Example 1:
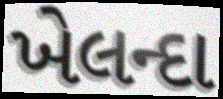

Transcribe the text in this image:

ખેલન્દા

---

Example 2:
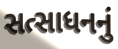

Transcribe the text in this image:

સત્સાધનનું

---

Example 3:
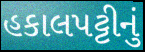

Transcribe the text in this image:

હકાલપટ્ટીનું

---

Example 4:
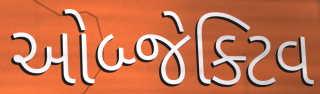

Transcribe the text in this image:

ઓબ્જેક્ટિવ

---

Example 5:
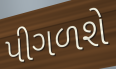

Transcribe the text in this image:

પીગળશે